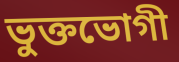
ভুক্তভোগী